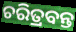
ଚରିତ୍ରବନ୍ତ